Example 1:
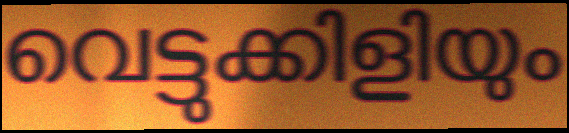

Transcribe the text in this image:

വെട്ടുക്കിളിയും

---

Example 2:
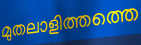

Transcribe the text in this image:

മുതലാളിത്തത്തെ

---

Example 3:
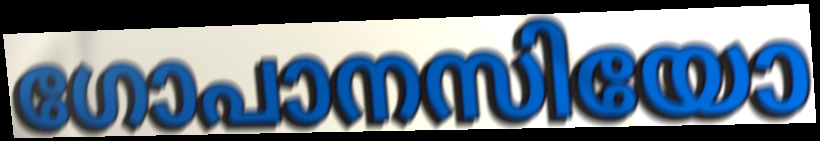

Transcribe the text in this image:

ഗോപാനസിയോ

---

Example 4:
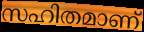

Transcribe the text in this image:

സഹിതമാണ്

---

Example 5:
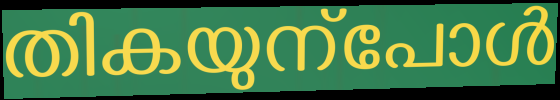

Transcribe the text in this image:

തികയുന്പോൾ